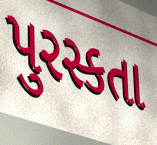
પુરસ્કતા